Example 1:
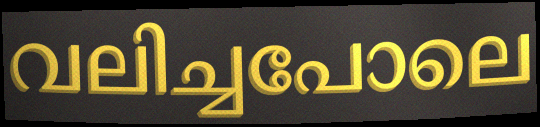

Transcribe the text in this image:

വലിച്ചപോലെ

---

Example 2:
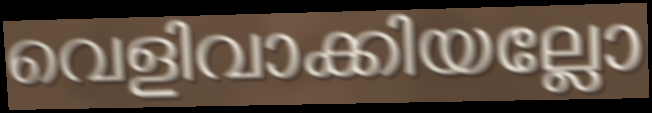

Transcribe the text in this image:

വെളിവാക്കിയല്ലോ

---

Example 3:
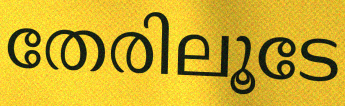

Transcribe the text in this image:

തേരിലൂടേ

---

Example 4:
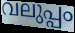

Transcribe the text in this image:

വലുപ്പം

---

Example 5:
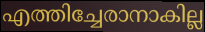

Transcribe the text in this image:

എത്തിച്ചേരാനാകില്ല